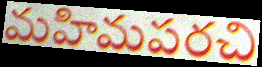
మహిమపరచి